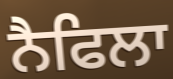
ਨੈਫਿਲਾ